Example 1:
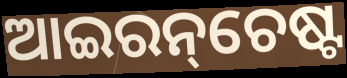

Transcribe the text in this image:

ଆଇରନ୍‌ଚେଷ୍ଟ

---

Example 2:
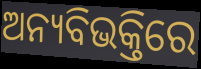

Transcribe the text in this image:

ଅନ୍ୟବିଭକ୍ତିରେ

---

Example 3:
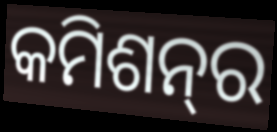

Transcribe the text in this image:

କମିଶନ୍‌ର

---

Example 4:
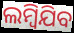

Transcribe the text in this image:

ଲମ୍ୱିଯିବ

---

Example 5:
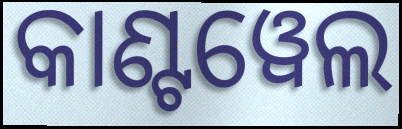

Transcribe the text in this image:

କାଣ୍ଟୱେଲ